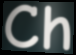
Ch